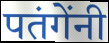
पतंगेंनी